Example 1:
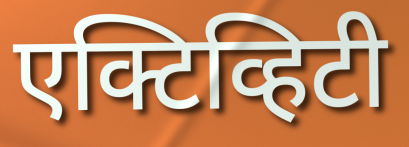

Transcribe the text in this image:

एक्टिव्हिटी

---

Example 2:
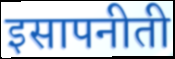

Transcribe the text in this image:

इसापनीती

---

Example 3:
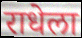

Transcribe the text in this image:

राधेला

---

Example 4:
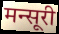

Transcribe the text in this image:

मन्सूरी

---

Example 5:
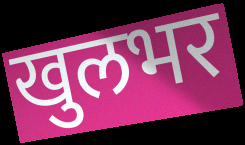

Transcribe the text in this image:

खुलभर